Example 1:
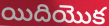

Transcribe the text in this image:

యిదియొక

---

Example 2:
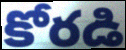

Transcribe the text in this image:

కోరడి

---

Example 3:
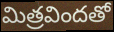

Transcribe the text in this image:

మిత్రవిందతో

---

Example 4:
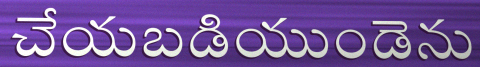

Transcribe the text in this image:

చేయబడియుండెను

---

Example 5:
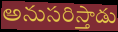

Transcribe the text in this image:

అనుసరిస్తాడు